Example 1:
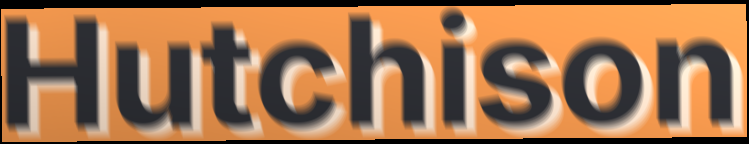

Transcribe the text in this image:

Hutchison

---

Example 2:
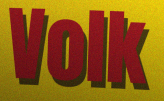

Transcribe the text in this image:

Volk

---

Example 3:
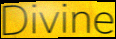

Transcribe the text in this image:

Divine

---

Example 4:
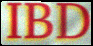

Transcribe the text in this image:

IBD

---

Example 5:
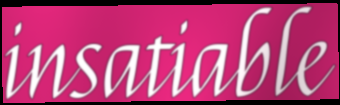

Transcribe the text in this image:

insatiable